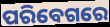
ପରିବେଗରେ